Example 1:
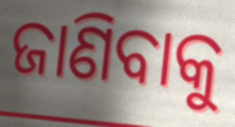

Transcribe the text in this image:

ଜାଣିବାକୁ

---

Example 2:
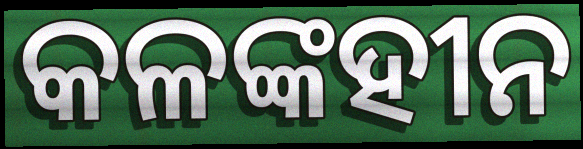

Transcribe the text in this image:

କଳଙ୍କହୀନ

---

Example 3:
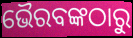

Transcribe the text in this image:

ଭୈରବଙ୍କଠାରୁ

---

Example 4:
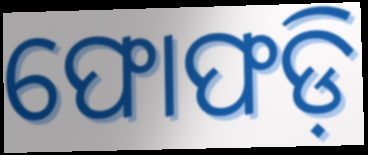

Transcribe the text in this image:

ଫୋଫଡ଼ି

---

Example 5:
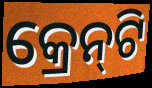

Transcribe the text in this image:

କ୍ରେନ୍‍ଟି